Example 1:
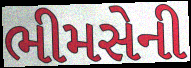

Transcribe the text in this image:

ભીમસેની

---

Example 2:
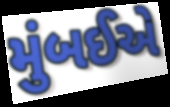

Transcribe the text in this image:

મુંબઈએ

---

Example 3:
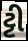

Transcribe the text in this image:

ટ્ટી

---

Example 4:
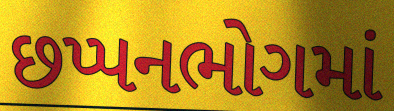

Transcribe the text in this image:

છપ્પનભોગમાં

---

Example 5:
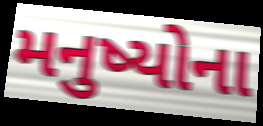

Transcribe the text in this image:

મનુષ્યોના